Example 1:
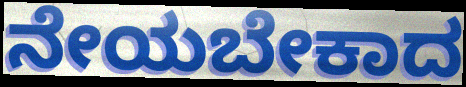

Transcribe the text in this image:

ನೇಯಬೇಕಾದ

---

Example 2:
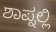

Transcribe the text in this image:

ಶಾಪ್ನಲ್ಲಿ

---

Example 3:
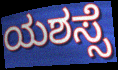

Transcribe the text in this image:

ಯಶಸ್ಸೆ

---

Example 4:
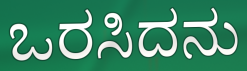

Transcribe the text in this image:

ಒರಸಿದನು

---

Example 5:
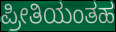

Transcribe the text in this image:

ಪ್ರೀತಿಯಂತಹ